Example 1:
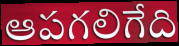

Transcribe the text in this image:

ఆపగలిగేది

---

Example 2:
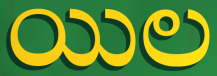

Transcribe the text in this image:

యిల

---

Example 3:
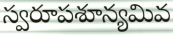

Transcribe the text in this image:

స్వరూపశూన్యమివ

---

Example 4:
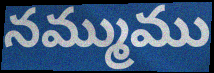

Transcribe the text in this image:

నమ్ముము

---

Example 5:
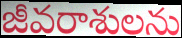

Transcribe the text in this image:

జీవరాశులను